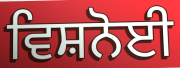
ਵਿਸ਼ਨੋਈ